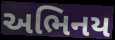
અભિનય